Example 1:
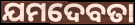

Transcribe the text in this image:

ଯମଦେବତା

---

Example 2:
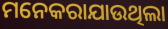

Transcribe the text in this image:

ମନେକରାଯାଉଥିଲା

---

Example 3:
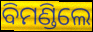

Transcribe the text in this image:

ବିମଣ୍ଡିଲେ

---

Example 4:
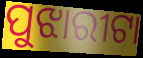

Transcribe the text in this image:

ପୁଝାରୀଟା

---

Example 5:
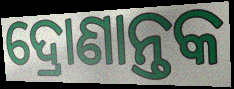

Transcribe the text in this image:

ଦ୍ରୋଣାନ୍ତକ